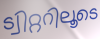
ട്വിറ്ററിലൂടെ